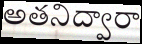
అతనిద్వారా